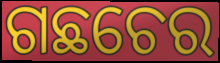
ଗଛଚେର